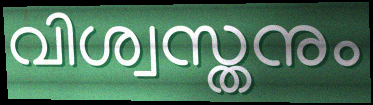
വിശ്വസ്തനും